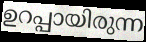
ഉറപ്പായിരുന്ന